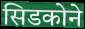
सिडकोने